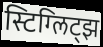
स्टिग्लिट्झ